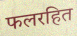
फलरहित